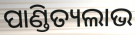
ପାଣ୍ଡିତ୍ୟଲାଭ